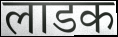
लाडक